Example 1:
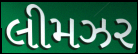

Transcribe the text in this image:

લીમઝર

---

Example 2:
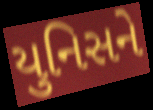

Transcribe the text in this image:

યુનિસને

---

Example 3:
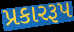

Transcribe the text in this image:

પ્રકારરૂપ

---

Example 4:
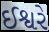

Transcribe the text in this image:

ઈશ્વરે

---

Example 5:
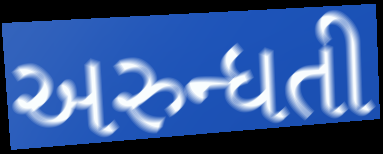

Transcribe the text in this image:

અરુન્ધતી